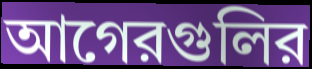
আগেরগুলির